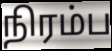
நிரம்ப